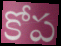
కోప